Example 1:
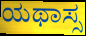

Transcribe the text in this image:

ಯಥಾಸ್ಸ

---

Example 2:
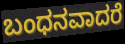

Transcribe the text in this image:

ಬಂಧನವಾದರೆ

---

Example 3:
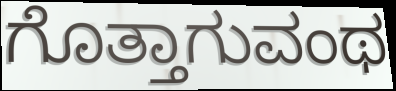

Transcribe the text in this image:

ಗೊತ್ತಾಗುವಂಥ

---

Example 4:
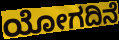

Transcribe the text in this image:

ಯೋಗದಿನೆ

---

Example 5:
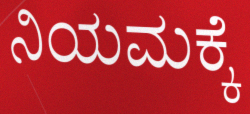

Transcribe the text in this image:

ನಿಯಮಕ್ಕೆ